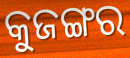
କୁଜଙ୍ଗର